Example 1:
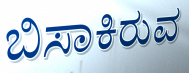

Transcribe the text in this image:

ಬಿಸಾಕಿರುವ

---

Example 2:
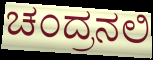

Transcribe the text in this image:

ಚಂದ್ರನಲಿ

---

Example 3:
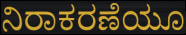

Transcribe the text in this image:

ನಿರಾಕರಣೆಯೂ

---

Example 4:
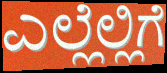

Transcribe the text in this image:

ಎಲ್ಲೆಲ್ಲಿಗೆ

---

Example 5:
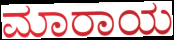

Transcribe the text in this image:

ಮಾರಾಯ